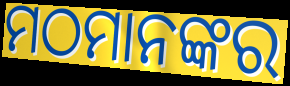
ମଠମାନଙ୍କର